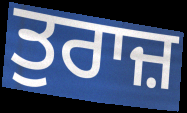
ਤੁਰਾਜ਼